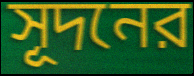
সূদনের